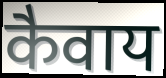
कैवाय